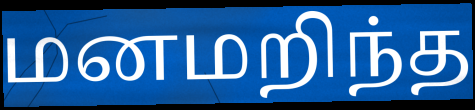
மனமறிந்த